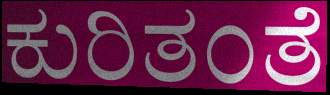
ಕುರಿತಂತೆ